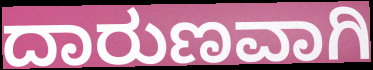
ದಾರುಣವಾಗಿ